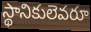
స్థానికులెవరూ